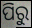
ପିରୁ